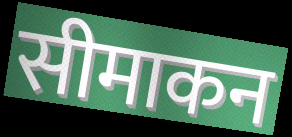
सीमाकन